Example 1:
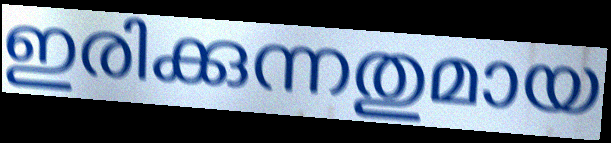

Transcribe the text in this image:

ഇരിക്കുന്നതുമായ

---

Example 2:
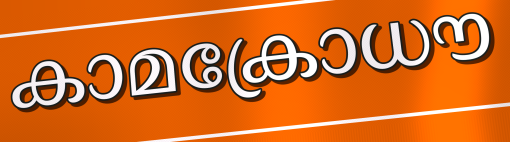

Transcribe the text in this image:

കാമക്രോധൗ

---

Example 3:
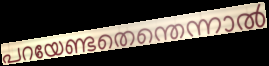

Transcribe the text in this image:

പറയേണ്ടതെന്തെന്നാൽ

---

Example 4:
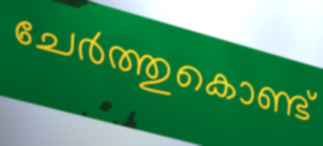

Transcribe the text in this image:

ചേർത്തുകൊണ്ട്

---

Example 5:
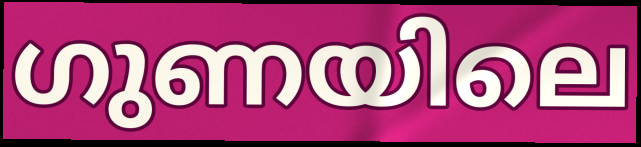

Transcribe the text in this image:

ഗുണയിലെ